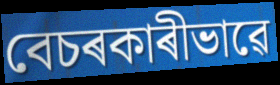
বেচৰকাৰীভাৱে